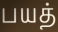
பயத்